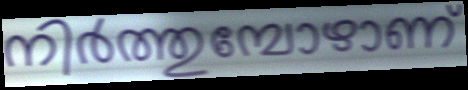
നിർത്തുമ്പോഴാണ്